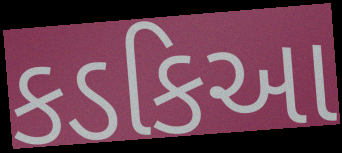
કડકિઆ